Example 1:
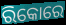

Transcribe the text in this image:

ରିକୋରେ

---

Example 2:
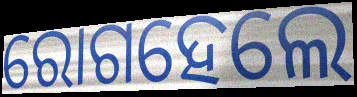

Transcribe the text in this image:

ରୋଗହେଲେ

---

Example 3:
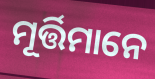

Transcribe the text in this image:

ମୂର୍ତ୍ତିମାନେ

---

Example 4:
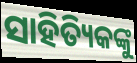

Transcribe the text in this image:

ସାହିତ୍ୟିକଙ୍କୁ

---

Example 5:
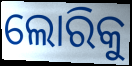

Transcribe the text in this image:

ଲୋରିକୁ